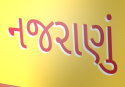
નજરાણું